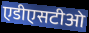
एडीएसटीओ